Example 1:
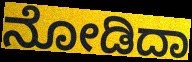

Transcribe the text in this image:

ನೋಡಿದಾ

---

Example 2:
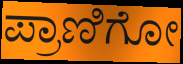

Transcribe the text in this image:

ಪ್ರಾಣಿಗೋ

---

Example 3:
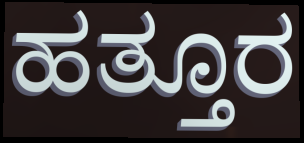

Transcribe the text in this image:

ಹತ್ತೂರ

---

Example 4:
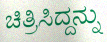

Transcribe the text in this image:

ಚಿತ್ರಿಸಿದ್ದನ್ನು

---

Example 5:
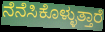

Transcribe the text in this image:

ನೆನೆಸಿಕೊಳ್ಳುತ್ತಾರೆ